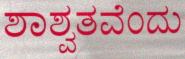
ಶಾಶ್ವತವೆಂದು